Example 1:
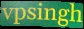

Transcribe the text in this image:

vpsingh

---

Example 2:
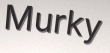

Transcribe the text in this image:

Murky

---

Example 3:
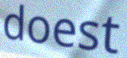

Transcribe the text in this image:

doest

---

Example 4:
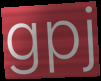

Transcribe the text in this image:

gpj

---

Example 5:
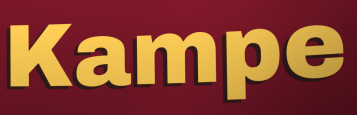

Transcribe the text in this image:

Kampe